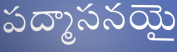
పద్మాసనయై